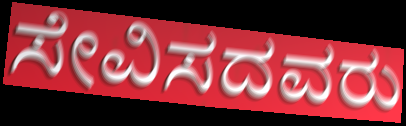
ಸೇವಿಸದವರು